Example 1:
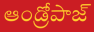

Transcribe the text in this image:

ఆండ్రోపాజ్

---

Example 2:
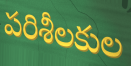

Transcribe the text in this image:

పరిశీలకుల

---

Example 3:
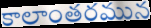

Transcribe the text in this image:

కాలాంతరమున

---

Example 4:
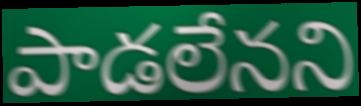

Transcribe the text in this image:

పాడలేనని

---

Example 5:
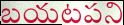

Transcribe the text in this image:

బయటపని